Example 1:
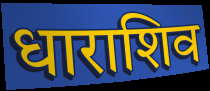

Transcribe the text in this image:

धाराशिव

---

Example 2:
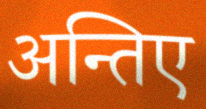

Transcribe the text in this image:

अन्तिए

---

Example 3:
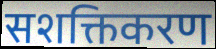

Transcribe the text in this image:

सशक्तिकरण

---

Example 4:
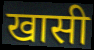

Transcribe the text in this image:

खासी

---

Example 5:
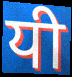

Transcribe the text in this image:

यी